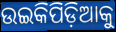
ଉଇକିପିଡ଼ିଆକୁ